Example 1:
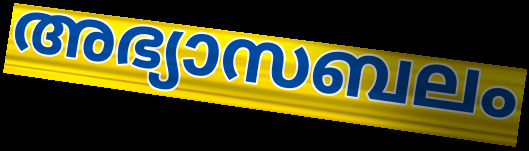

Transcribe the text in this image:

അഭ്യാസബലം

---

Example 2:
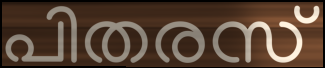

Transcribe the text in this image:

പിതരസ്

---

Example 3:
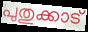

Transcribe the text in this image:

പുതുക്കാട്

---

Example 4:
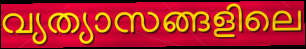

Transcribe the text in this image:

വ്യത്യാസങ്ങളിലെ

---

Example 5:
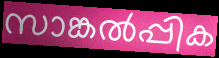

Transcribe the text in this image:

സാങ്കൽപ്പിക